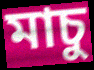
মাচু